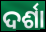
ଦର୍ଶା